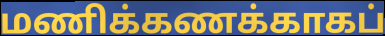
மணிக்கணக்காகப்